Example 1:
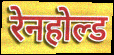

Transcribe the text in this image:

रेनहोल्ड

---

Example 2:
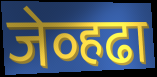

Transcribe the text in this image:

जेव्हढा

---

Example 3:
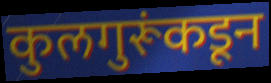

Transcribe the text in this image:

कुलगुरूंकडून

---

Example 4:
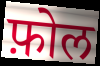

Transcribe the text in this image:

फ़ोल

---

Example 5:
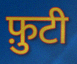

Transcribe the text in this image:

फ़ुटी